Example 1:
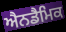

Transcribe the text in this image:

ਐਨਡੈਮਿਕ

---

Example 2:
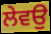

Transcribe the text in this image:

ਲੇਵਉ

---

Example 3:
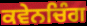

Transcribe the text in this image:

ਕਵੇਨਚਿੰਗ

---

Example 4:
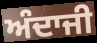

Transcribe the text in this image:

ਅੰਦਾਜੀ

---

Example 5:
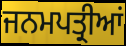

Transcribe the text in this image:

ਜਨਮਪਤ੍ਰੀਆਂ